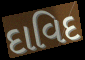
દાવિદ